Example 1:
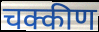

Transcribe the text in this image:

चक्कीण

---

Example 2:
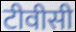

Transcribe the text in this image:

टीवीसी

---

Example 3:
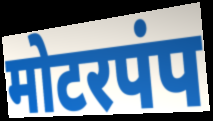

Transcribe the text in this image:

मोटरपंप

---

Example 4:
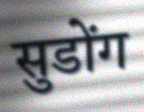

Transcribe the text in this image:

सुडोंग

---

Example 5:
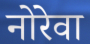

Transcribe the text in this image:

नोरेवा